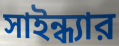
সাইন্ধ্যার